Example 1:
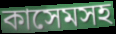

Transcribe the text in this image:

কাসেমসহ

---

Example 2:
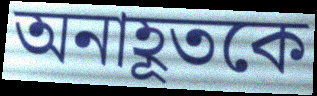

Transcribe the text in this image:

অনাহূতকে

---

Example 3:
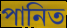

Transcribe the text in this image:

পানিত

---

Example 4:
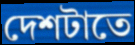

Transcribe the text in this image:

দেশটাতে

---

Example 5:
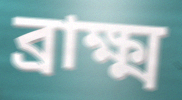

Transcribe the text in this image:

ব্রাক্ষ্ম